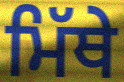
ਮਿੱਥੇ